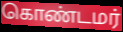
கொண்டமர்